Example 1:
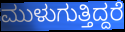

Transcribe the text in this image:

ಮುಳುಗುತ್ತಿದ್ದರೆ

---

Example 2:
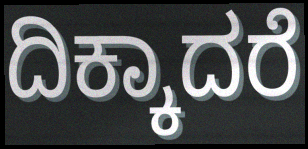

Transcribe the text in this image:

ದಿಕ್ಕಾದರೆ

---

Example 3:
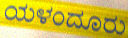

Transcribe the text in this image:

ಯಳಂದೂರು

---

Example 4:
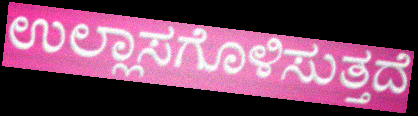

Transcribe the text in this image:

ಉಲ್ಲಾಸಗೊಳಿಸುತ್ತದೆ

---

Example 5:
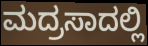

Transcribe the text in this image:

ಮದ್ರಸಾದಲ್ಲಿ